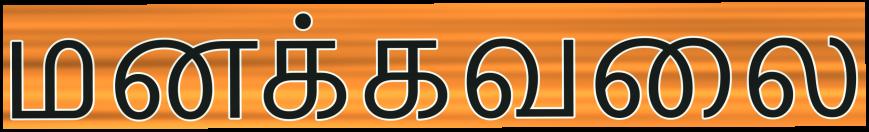
மனக்கவலை